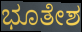
ಭೂತೇಶ